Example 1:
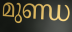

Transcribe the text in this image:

മുണ്ഡ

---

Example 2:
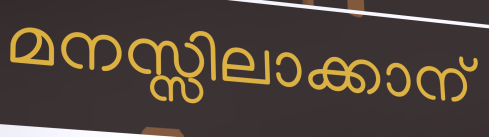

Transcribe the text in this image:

മനസ്സിലാക്കാന്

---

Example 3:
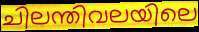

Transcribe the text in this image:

ചിലന്തിവലയിലെ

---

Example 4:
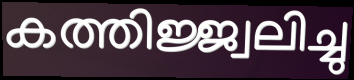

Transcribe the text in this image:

കത്തിജ്ജ്വലിച്ചു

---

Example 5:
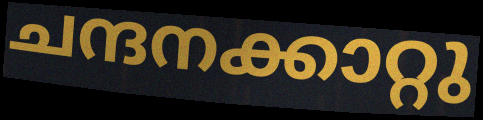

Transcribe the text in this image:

ചന്ദനക്കാറ്റു